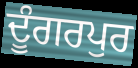
ਦੂੰਗਰਪੁਰ